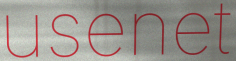
usenet